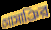
গোসাঞির